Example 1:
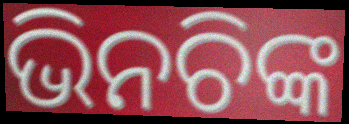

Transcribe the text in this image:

ଭିନଚିଙ୍କ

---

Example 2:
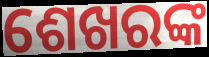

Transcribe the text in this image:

ଶେଖରଙ୍କ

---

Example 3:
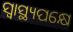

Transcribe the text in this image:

ସ୍ଵାସ୍ଥ୍ୟପକ୍ଷେ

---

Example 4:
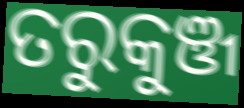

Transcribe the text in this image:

ତରୁକୁଞ୍ଜ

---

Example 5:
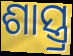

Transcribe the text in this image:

ଶାସ୍ତ୍ର୍ର